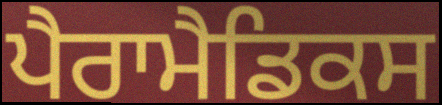
ਪੈਰਾਮੈਡਿਕਸ